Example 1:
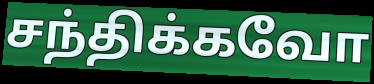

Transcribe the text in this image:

சந்திக்கவோ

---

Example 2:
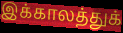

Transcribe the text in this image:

இக்காலத்துக்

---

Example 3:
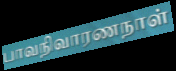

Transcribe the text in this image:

பாவநிவாரணநாள்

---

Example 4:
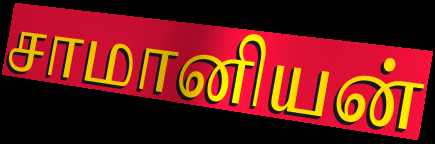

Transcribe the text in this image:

சாமானியன்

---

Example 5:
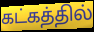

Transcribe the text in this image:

கட்கத்தில்